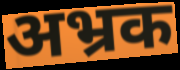
अभ्रक